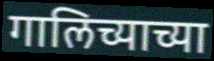
गालिच्याच्या